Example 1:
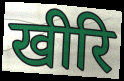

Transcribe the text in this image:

खीरि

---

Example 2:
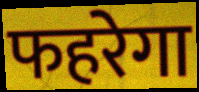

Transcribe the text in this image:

फहरेगा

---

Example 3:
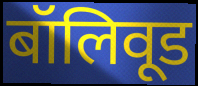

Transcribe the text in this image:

बॉलिवूड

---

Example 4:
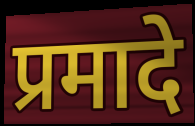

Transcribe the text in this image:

प्रमादे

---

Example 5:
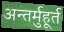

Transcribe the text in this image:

अन्तर्मुहूर्त